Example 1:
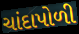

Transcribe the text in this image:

ચાંદાપોળી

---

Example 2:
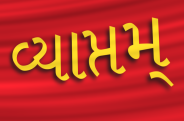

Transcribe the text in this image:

વ્યાપ્તમ્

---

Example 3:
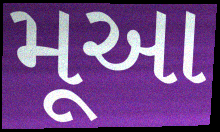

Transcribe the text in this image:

મૂઆ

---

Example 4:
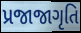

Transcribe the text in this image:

પ્રજાજાગૃતિ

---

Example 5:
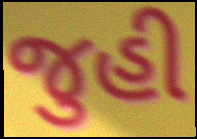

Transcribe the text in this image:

જુહી